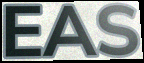
EAS